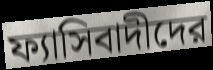
ফ্যাসিবাদীদের